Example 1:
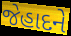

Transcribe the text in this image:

જેહાદને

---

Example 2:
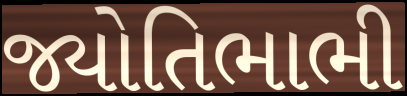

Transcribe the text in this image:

જ્યોતિભાભી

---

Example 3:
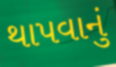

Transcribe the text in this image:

થાપવાનું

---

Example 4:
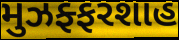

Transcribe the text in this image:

મુઝફ્ફરશાહ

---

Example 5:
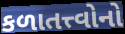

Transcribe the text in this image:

કળાતત્ત્વોનો